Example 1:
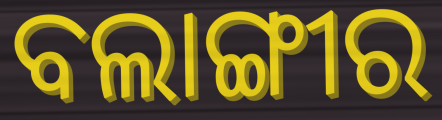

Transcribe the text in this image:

ବଲାଙ୍ଗୀର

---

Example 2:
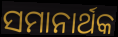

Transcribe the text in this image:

ସମାନାର୍ଥକ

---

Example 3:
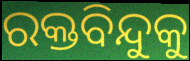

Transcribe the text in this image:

ରକ୍ତବିନ୍ଦୁକୁ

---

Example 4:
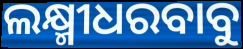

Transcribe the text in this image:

ଲକ୍ଷ୍ମୀଧରବାବୁ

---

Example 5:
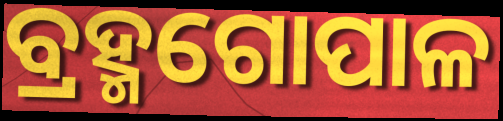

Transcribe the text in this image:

ବ୍ରହ୍ମଗୋପାଳ